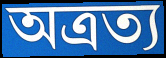
অত্রত্য